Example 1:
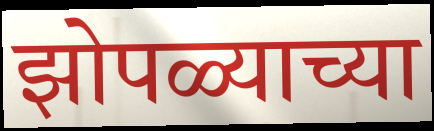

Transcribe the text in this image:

झोपळ्याच्या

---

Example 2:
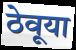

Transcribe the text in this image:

ठेवूया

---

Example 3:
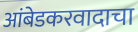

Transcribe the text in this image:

आंबेडकरवादाचा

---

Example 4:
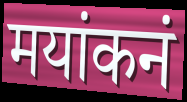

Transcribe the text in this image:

मयांकनं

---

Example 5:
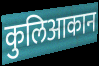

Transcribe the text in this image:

कुलिआकान